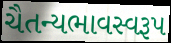
ચૈતન્યભાવસ્વરૂપ